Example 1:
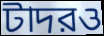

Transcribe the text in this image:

টাদরও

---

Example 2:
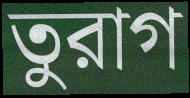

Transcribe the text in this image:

তুরাগ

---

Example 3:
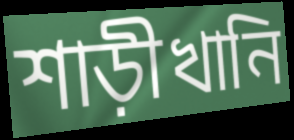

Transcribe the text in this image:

শাড়ীখানি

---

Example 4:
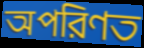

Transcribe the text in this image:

অপরিণত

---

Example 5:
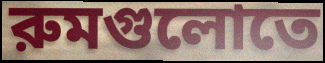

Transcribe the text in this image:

রুমগুলোতে